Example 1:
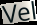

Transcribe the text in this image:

Vel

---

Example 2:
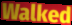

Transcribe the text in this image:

Walked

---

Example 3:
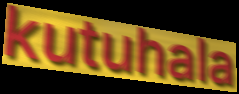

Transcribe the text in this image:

kutuhala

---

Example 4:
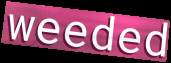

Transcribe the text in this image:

weeded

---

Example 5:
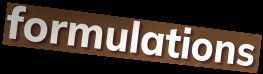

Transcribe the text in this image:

formulations